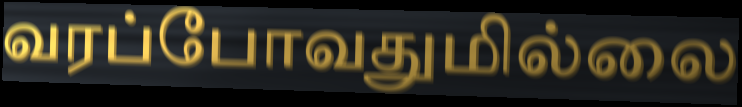
வரப்போவதுமில்லை